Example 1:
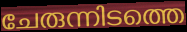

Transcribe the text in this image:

ചേരുന്നിടത്തെ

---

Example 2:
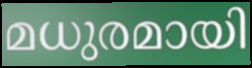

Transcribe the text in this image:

മധുരമായി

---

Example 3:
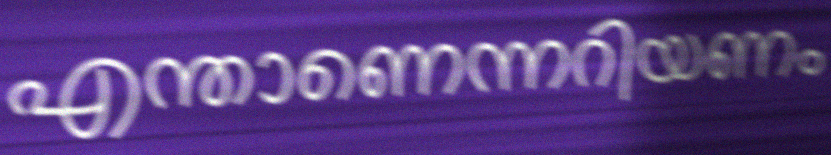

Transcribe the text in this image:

എന്താണെന്നറിയണം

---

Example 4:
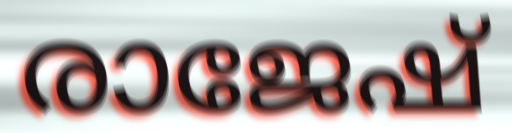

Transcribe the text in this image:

രാജേഷ്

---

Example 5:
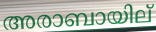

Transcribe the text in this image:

അരാബായില്